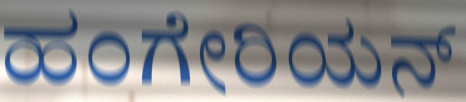
ಹಂಗೇರಿಯನ್